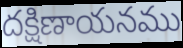
దక్షిణాయనము